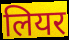
लियर